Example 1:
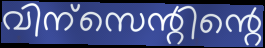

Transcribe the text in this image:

വിന്സെന്റിന്റെ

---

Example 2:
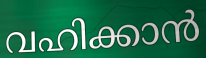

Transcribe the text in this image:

വഹിക്കാൻ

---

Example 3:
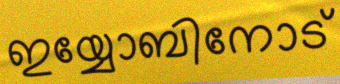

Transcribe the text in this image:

ഇയ്യോബിനോട്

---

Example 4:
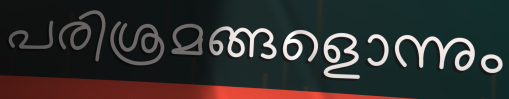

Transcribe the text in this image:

പരിശ്രമങ്ങളൊന്നും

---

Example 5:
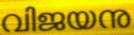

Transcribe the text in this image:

വിജയനു